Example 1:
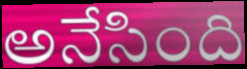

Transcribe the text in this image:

అనేసింది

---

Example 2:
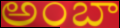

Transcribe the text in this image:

అంబా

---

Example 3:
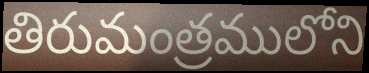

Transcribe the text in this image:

తిరుమంత్రములోని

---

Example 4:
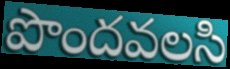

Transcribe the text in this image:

పొందవలసి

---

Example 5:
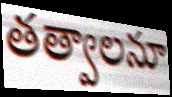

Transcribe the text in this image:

తత్వాలనూ